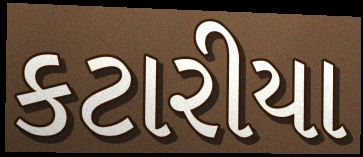
કટારીયા